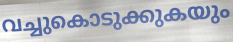
വച്ചുകൊടുക്കുകയും